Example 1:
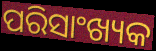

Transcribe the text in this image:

ପରିସାଂଖ୍ୟକ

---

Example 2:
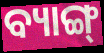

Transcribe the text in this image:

ବ୍ୟାଙ୍ଗ୍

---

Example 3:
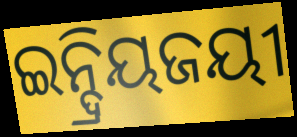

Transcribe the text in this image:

ଇନ୍ଦ୍ରିୟଜୟୀ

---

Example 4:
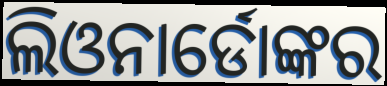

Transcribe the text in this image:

ଲିଓନାର୍ଡୋଙ୍କର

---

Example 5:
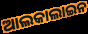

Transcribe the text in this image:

ଆଲକାଲାଇନ